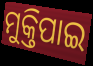
ମୁକ୍ତିପାଇ